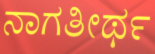
ನಾಗತೀರ್ಥ